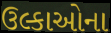
ઉલ્કાઓના